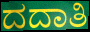
ದದಾತಿ